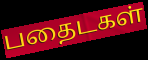
பதைடகள்